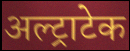
अल्ट्राटेक